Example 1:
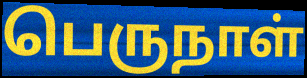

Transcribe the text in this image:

பெருநாள்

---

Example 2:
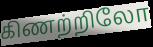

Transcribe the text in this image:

கிணற்றிலோ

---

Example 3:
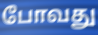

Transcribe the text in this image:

போவது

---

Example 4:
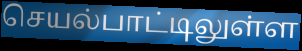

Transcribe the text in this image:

செயல்பாட்டிலுள்ள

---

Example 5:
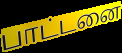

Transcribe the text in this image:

பாட்டனை